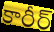
కారీర్